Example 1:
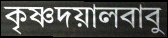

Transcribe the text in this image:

কৃষ্ণদয়ালবাবু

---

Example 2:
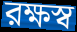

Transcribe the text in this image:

রক্ষস্ব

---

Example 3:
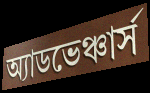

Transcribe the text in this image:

অ্যাডভেঞ্চার্স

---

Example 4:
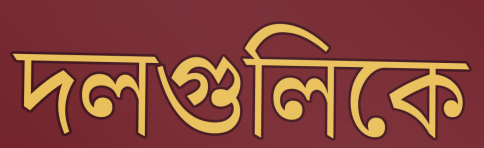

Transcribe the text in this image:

দলগুলিকে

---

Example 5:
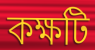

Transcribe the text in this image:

কক্ষটি